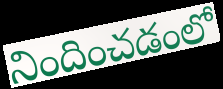
నిందించడంలో